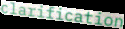
clarification